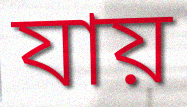
যায়